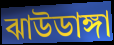
ঝাউডাঙ্গা